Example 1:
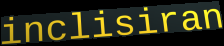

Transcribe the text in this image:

inclisiran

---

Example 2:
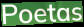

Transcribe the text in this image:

Poetas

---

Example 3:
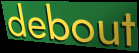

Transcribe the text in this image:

debout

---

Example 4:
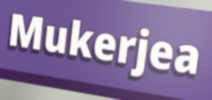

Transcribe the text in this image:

Mukerjea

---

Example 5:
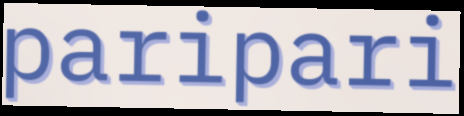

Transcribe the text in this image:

paripari